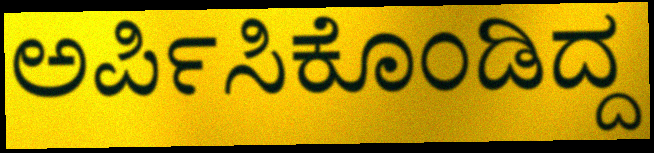
ಅರ್ಪಿಸಿಕೊಂಡಿದ್ದ